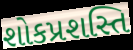
શોકપ્રશસ્તિ